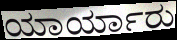
ಯಾರ್ಯಾರು